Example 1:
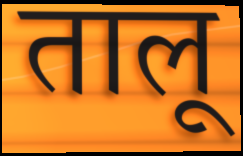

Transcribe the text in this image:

तालू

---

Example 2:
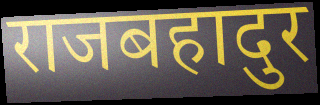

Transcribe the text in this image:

राजबहादुर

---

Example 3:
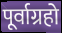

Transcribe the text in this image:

पूर्वाग्रहो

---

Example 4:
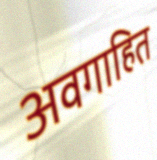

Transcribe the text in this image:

अवगाहित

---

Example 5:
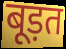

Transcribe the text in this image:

बूड़त